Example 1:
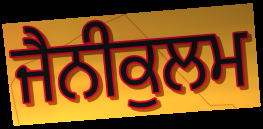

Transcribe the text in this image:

ਜੈਨੀਕੁਲਮ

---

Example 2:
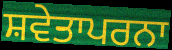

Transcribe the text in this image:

ਸ਼ਵੇਤਾਪਰਨਾ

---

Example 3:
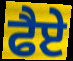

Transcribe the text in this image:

ਫੈਏ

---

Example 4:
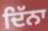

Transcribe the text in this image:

ਦਿੱਨਾ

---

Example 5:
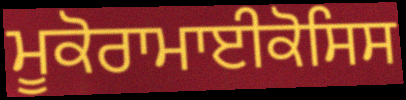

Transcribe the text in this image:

ਮੂਕੋਰਾਮਾਈਕੋਸਿਸ